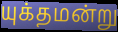
யுக்தமன்று